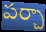
పర్చా